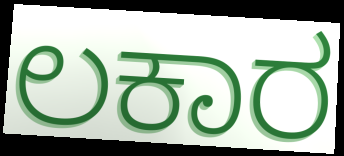
ಲಕಾರ